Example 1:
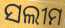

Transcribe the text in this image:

ସଲୀମ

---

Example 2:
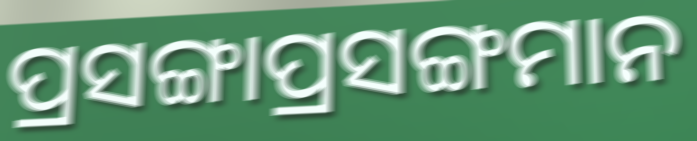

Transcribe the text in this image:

ପ୍ରସଙ୍ଗାପ୍ରସଙ୍ଗମାନ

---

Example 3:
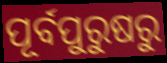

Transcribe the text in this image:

ପୂର୍ବପୁରୁଷରୁ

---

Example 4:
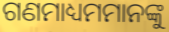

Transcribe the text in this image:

ଗଣମାଧ୍ୟମମାନଙ୍କୁ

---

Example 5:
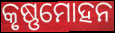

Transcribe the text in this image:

କୃଷ୍ଣମୋହନ